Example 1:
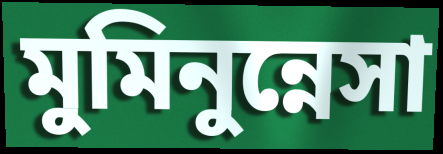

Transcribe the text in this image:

মুমিনুন্নেসা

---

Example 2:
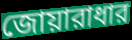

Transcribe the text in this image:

জোয়ারাধার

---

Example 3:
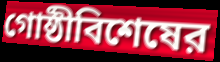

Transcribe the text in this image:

গোষ্ঠীবিশেষের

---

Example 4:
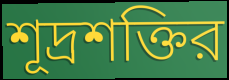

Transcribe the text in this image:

শূদ্রশক্তির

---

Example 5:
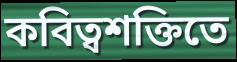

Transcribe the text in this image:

কবিত্বশক্তিতে